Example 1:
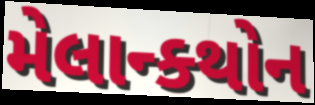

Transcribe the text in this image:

મેલાન્ક્થોન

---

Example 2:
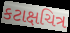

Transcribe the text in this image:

કટાક્ષચિત્ર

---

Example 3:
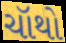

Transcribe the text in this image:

ચૉથો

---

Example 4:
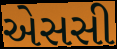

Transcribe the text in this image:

એસસી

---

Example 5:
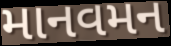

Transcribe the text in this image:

માનવમન